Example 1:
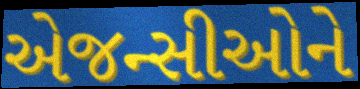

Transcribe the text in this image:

એજન્સીઓને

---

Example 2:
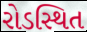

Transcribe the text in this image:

રોડસ્થિત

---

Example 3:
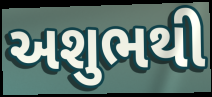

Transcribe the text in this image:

અશુભથી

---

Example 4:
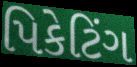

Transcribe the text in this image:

પિકેટિંગ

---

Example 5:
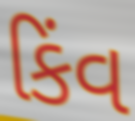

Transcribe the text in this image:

કિંવ